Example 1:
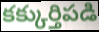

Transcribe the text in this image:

కక్కుర్తిపడి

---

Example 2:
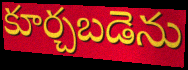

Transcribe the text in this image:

కూర్చబడెను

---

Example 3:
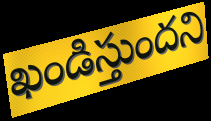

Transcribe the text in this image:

ఖండిస్తుందని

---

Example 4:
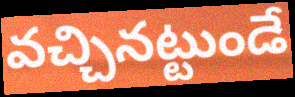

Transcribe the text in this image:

వచ్చినట్టుండే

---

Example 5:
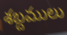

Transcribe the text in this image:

శబ్దములు